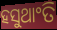
ହସୁଥାଂତି